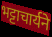
भट्टाचार्यने